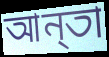
আন্‌তা